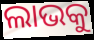
ଲାଭକୁ